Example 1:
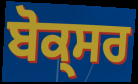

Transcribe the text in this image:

ਬੋਕ੍ਸਰ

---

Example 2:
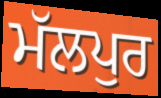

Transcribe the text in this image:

ਮੱਲਪੁਰ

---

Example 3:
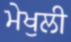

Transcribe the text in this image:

ਮੇਖੁਲੀ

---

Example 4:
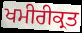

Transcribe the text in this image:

ਖਮੀਰੀਕ੍ਰਤ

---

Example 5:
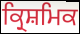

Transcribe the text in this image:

ਕ੍ਰਿਸ਼ਮਿਕ